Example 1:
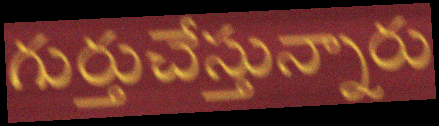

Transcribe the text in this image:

గుర్తుచేస్తున్నారు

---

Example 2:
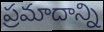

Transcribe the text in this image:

ప్రమాదాన్ని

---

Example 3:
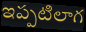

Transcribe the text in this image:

ఇప్పటిలాగ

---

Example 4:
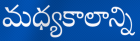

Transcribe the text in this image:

మధ్యకాలాన్ని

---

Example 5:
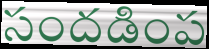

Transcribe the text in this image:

సందడింప